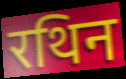
रथिन